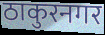
ठाकुरनगर